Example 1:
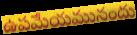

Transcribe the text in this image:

ఉపమేయమునందు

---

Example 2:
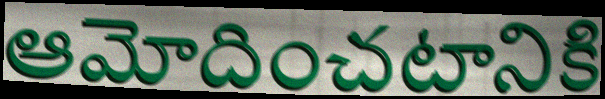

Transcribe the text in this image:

ఆమోదించటానికి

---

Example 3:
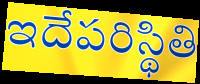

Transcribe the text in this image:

ఇదేపరిస్థితి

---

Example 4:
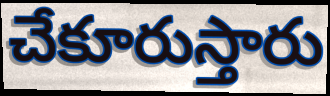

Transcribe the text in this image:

చేకూరుస్తారు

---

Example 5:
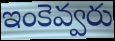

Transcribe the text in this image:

ఇంకెవ్వరు